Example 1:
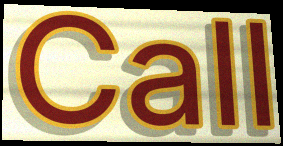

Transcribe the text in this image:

Call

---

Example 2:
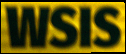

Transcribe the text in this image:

WSIS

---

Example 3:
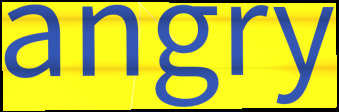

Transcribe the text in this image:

angry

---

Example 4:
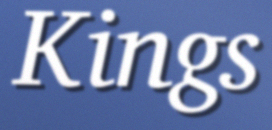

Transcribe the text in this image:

Kings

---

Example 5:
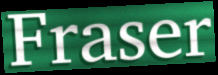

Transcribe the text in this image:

Fraser